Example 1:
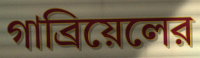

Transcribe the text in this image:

গাব্রিয়েলের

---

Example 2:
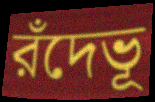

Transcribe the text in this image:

রঁদেভূ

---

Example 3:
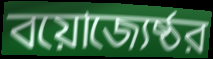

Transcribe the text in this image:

বয়োজ্যেষ্ঠর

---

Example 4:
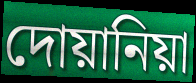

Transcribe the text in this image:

দোয়ানিয়া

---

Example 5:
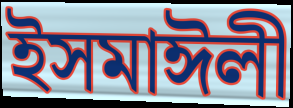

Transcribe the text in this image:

ইসমাঈলী